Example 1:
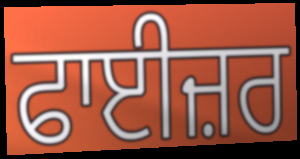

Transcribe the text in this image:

ਫਾਈਜ਼ਰ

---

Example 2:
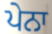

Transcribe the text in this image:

ਪੇਨਾ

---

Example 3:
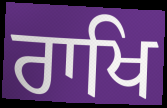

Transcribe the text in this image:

ਰਾਖਿ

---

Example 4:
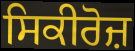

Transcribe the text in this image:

ਸਿਕੀਰੋਜ਼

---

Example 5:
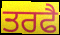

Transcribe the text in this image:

ਤਰਫੈ